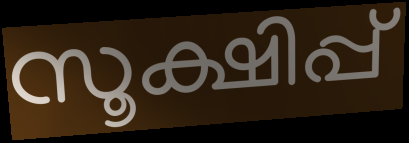
സൂക്ഷിപ്പ്